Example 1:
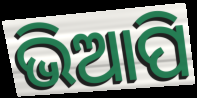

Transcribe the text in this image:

ଭିଆପି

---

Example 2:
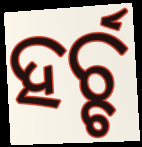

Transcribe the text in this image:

ହର୍ଚ୍ଚ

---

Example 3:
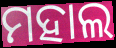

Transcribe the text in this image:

ମହାଲ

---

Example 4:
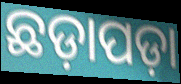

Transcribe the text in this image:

ଛଡ଼ାପଡ଼ା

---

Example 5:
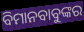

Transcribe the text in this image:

ବିମାନବାବୁଙ୍କର